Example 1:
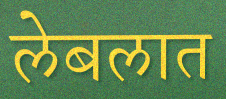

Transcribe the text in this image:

लेबलात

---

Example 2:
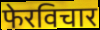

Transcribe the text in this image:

फेरविचार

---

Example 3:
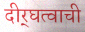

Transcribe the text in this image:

दीर्घत्वाची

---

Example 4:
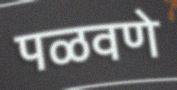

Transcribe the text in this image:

पळवणे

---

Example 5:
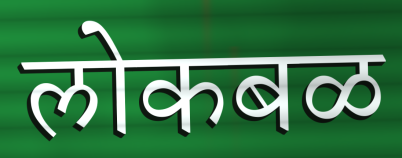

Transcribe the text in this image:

लोकबळ